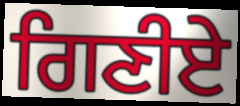
ਗਿਣੀਏ